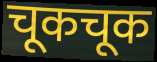
चूकचूक